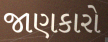
જાણકારો